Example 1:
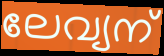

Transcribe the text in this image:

ലേവ്യന്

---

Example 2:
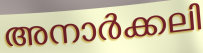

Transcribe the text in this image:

അനാർക്കലി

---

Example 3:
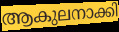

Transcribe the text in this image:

ആകുലനാക്കി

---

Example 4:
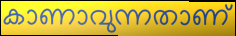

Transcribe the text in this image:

കാണാവുന്നതാണ്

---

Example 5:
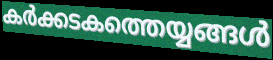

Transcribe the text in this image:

കർക്കടകത്തെയ്യങ്ങൾ